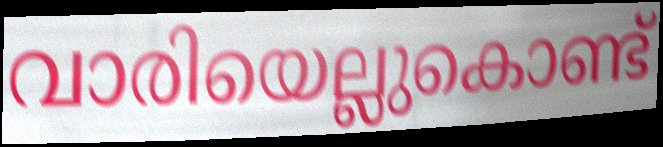
വാരിയെല്ലുകൊണ്ട്